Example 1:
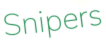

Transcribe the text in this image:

Snipers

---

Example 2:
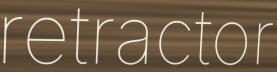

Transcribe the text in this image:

retractor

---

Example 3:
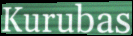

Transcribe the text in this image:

Kurubas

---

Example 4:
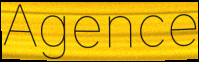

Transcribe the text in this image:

Agence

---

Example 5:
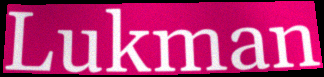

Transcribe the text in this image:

Lukman